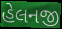
હેલનજી